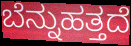
ಬೆನ್ನುಹತ್ತದೆ